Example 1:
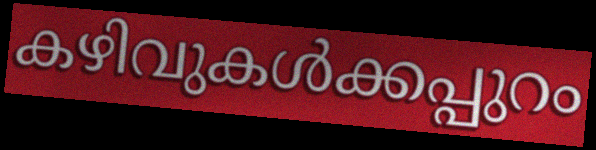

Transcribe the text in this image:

കഴിവുകൾക്കപ്പുറം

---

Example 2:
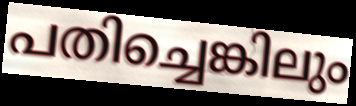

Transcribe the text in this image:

പതിച്ചെങ്കിലും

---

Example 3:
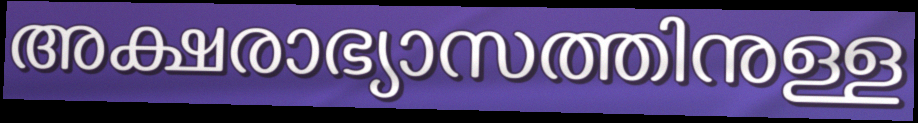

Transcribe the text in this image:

അക്ഷരാഭ്യാസത്തിനുള്ള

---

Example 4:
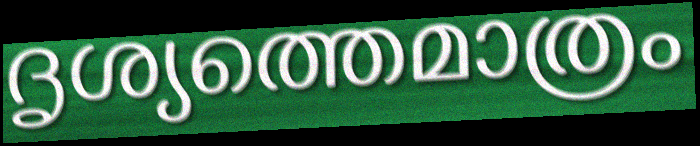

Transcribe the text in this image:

ദൃശ്യത്തെമാത്രം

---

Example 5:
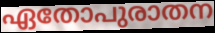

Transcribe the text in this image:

ഏതോപുരാതന